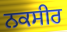
ਨਕਸੀਰ